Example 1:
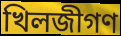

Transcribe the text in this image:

খিলজীগণ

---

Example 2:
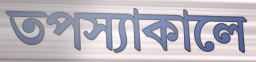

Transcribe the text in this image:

তপস্যাকালে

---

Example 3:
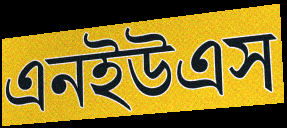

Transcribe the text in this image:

এনইউএস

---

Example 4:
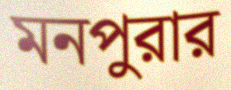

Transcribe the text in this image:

মনপুরার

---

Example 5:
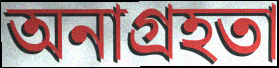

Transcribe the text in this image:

অনাগ্রহতা